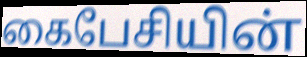
கைபேசியின்